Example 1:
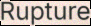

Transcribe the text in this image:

Rupture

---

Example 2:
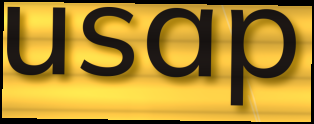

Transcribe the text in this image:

usap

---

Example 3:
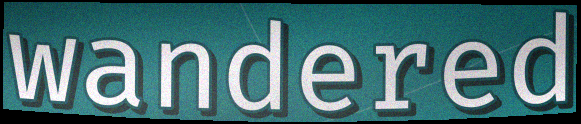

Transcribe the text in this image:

wandered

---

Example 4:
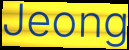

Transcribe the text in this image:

Jeong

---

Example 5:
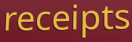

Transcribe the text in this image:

receipts